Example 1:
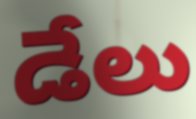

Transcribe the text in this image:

డేలు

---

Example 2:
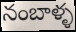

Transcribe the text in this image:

నంబాళ్ళ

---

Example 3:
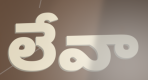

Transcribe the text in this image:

లేవా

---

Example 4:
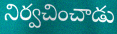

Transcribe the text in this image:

నిర్వచించాడు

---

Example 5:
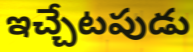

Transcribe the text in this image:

ఇచ్చేటపుడు